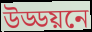
উড্ডয়নে